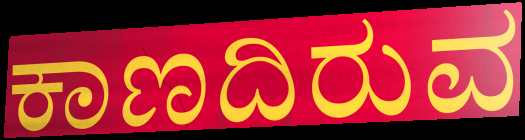
ಕಾಣದಿರುವ